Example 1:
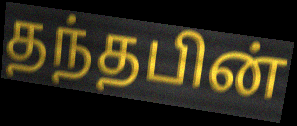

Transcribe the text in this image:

தந்தபின்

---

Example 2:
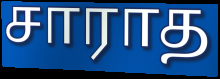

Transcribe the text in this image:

சாராத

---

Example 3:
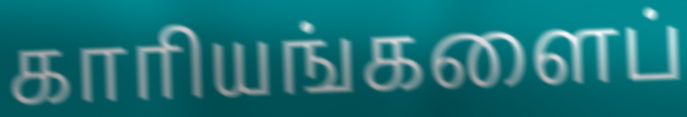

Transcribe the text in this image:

காரியங்களைப்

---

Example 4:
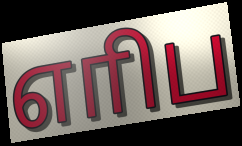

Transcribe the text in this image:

எரிப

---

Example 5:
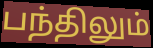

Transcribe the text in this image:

பந்திலும்